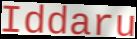
Iddaru